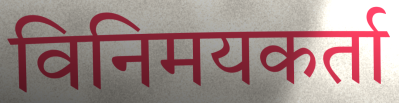
विनिमयकर्ता